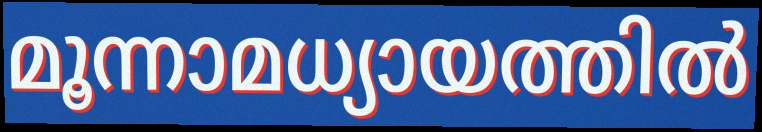
മൂന്നാമധ്യായത്തിൽ